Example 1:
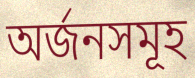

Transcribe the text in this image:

অর্জনসমূহ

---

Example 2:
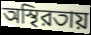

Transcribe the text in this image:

অস্থিরতায়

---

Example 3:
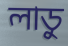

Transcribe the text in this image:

লাডু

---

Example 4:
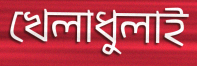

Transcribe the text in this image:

খেলাধুলাই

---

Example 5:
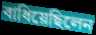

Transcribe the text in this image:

বাধিয়েছিলেন